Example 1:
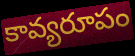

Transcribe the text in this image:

కావ్యరూపం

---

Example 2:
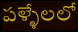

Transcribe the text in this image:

పళ్ళేలలో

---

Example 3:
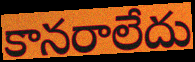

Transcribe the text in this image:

కానరాలేదు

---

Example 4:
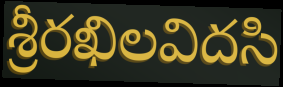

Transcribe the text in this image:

శ్రీరఖిలవిదసి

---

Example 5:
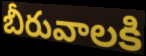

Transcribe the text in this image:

బీరువాలకి